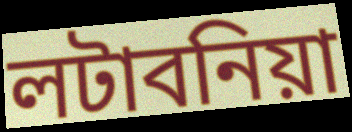
লটাবনিয়া